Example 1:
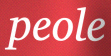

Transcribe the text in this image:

peole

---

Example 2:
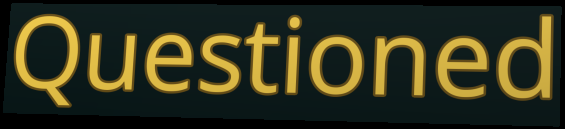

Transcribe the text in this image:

Questioned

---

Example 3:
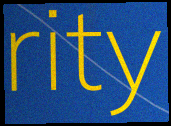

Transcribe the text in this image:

rity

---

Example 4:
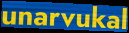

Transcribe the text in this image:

unarvukal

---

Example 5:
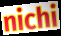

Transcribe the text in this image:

nichi